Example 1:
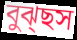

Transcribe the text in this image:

বুঝ্ছস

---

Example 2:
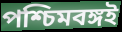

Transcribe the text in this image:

পশ্চিমবঙ্গই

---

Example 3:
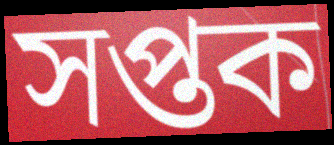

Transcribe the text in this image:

সপ্তক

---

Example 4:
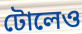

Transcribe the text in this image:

টোলেও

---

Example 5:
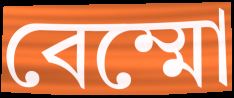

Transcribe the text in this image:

বেম্মো